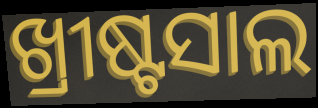
ଖ୍ରୀଷ୍ଟସାଲ